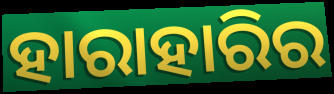
ହାରାହାରିର